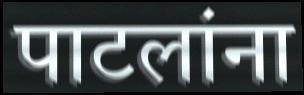
पाटलांना